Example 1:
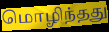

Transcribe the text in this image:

மொழிந்தது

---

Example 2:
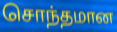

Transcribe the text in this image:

சொந்தமான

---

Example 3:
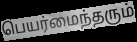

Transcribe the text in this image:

பெயர்மைந்தரும்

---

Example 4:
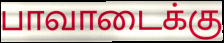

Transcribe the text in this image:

பாவாடைக்கு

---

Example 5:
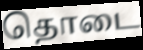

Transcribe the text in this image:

தொடை